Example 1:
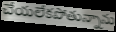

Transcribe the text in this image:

చేయలేకపోతున్నాను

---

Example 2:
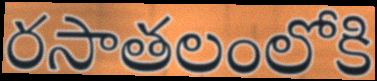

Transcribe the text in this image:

రసాతలంలోకి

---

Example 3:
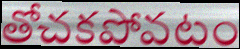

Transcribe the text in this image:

తోచకపోవటం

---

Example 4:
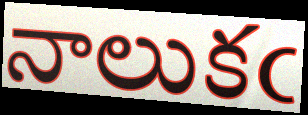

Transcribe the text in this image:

నాలుకఁ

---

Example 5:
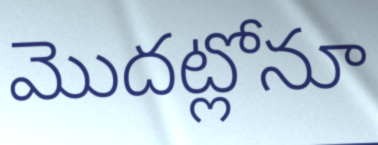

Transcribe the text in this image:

మొదట్లోనూ